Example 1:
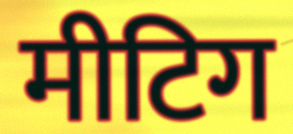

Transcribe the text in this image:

मीटिग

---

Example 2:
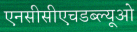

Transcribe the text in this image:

एनसीसीएचडब्ल्यूओ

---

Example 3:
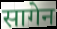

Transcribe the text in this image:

सागेन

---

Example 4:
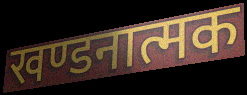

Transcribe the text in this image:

खण्डनात्मक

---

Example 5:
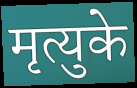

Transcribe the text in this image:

मृत्युके